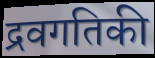
द्रवगतिकी